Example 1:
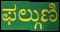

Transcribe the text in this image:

ಫಲ್ಗುಣಿ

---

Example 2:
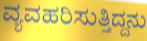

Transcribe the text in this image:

ವ್ಯವಹರಿಸುತ್ತಿದ್ದನು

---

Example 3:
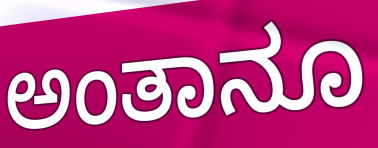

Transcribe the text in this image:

ಅಂತಾನೂ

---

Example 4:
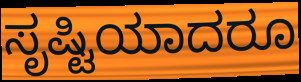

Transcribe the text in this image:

ಸೃಷ್ಟಿಯಾದರೂ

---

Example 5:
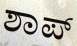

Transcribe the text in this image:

ಶಾಪ್